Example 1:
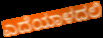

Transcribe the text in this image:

ಎದೆಯಾಳದಲಿ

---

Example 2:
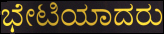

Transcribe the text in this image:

ಭೇಟಿಯಾದರು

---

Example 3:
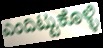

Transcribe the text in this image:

ಎಂದಿಟ್ಟುಕೊಳ್ಳಿ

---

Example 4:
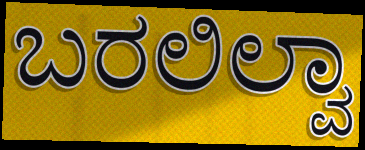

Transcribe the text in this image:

ಬರಲಿಲ್ವಾ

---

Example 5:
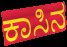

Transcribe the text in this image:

ಕಾಸಿನ